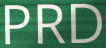
PRD